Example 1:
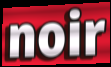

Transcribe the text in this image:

noir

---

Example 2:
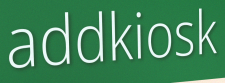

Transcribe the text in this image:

addkiosk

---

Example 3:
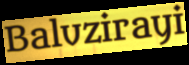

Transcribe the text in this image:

Baluzirayi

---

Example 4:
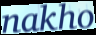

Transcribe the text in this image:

nakho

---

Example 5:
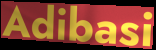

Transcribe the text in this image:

Adibasi